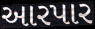
આરપાર